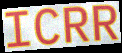
ICRR